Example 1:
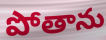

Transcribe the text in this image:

పోతాను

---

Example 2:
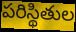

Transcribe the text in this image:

పరిస్థితుల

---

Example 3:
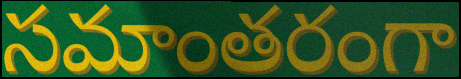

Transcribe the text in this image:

సమాంతరంగా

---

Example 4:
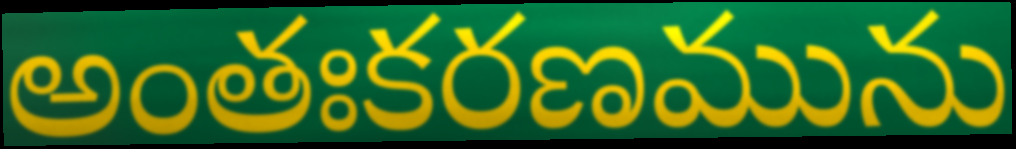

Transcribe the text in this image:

అంతఃకరణమును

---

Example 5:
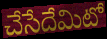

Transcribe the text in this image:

చేసేదేమిటో